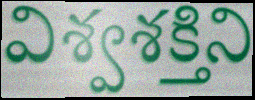
విశ్వశక్తిని